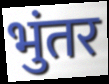
भुंतर